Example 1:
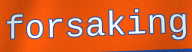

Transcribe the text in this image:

forsaking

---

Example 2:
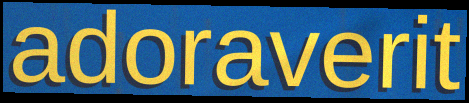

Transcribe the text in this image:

adoraverit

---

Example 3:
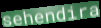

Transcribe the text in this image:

sehendira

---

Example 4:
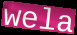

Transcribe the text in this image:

wela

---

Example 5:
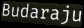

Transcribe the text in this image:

Budaraju